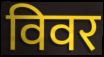
विवर